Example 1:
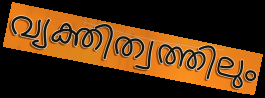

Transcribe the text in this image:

വ്യക്തിത്വത്തിലും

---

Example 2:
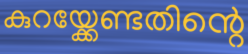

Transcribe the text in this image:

കുറയ്ക്കേണ്ടതിന്റെ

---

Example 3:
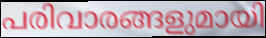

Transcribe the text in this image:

പരിവാരങ്ങളുമായി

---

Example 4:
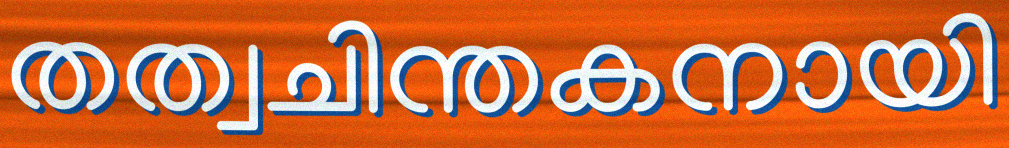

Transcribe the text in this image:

തത്വചിന്തകനായി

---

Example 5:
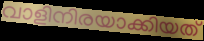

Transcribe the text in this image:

വാളിനിരയാക്കിയത്